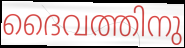
ദൈവത്തിനു